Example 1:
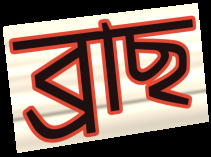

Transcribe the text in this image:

ব্ৰাছ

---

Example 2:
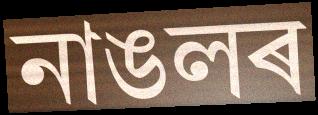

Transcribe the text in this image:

নাঙলৰ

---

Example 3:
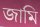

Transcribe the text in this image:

জামি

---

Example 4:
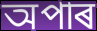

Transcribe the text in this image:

অপাৰ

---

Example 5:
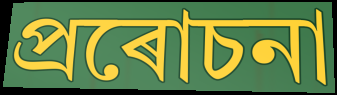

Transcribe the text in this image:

প্ৰৰোচনা